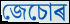
জেচোৰ